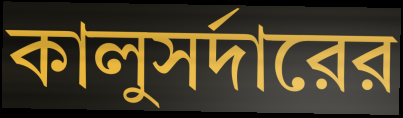
কালুসর্দারের